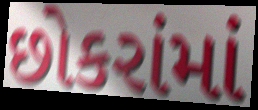
છોકરાંમાં